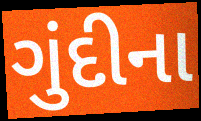
ગુંદીના